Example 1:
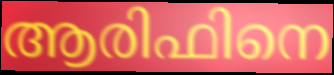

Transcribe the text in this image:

ആരിഫിനെ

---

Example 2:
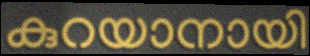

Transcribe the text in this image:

കുറയാനായി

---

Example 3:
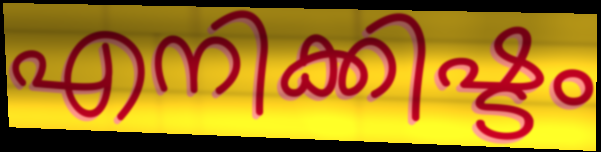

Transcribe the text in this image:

എനിക്കിഷ്ടം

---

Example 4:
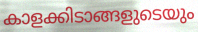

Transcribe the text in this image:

കാളക്കിടാങ്ങളുടെയും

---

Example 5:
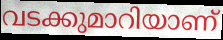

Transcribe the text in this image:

വടക്കുമാറിയാണ്